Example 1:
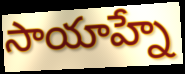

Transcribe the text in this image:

సాయాహ్నే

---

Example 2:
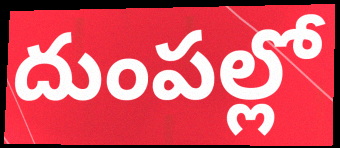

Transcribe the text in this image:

దుంపల్లో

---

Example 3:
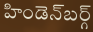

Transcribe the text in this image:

హిండెన్‌బర్గ్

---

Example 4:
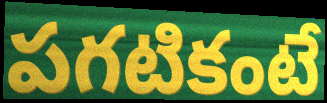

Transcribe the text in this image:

పగటికంటే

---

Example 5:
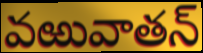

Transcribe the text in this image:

వఱువాతన్